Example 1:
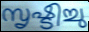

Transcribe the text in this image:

സൃഷ്ടിച്ചു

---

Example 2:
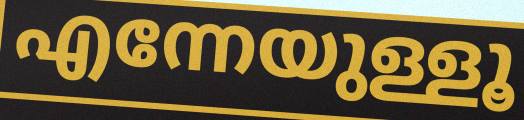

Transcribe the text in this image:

എന്നേയുള്ളൂ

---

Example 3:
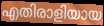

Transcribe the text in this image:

എതിരാളിയായ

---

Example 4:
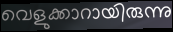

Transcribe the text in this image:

വെളുക്കാറായിരുന്നു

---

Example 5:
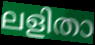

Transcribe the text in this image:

ലളിതാ